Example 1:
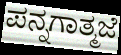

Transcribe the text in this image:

ಪನ್ನಗಾತ್ಮಜೆ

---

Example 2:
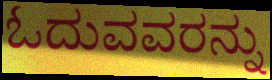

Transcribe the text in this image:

ಓದುವವರನ್ನು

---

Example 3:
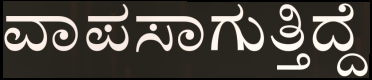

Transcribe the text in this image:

ವಾಪಸಾಗುತ್ತಿದ್ದೆ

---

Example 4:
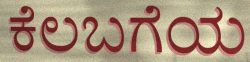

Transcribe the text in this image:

ಕೆಲಬಗೆಯ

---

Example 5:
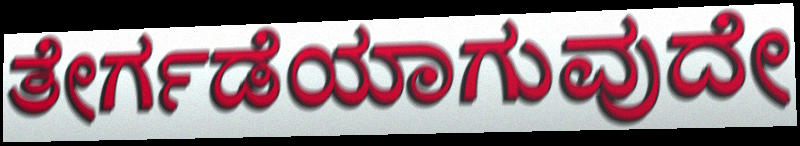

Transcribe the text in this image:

ತೇರ್ಗಡೆಯಾಗುವುದೇ